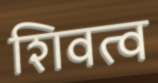
शिवत्व